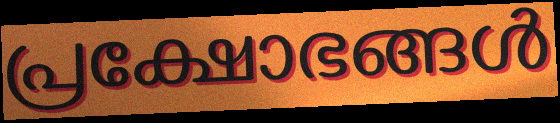
പ്രക്ഷോഭങ്ങൾ